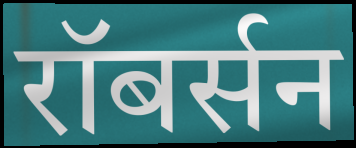
रॉबर्सन